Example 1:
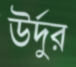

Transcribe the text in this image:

উর্দুর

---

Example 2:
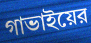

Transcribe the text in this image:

গাভাইয়ের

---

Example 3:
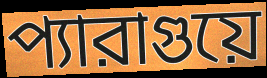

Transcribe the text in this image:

প্যারাগুয়ে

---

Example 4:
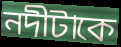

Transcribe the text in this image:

নদীটাকে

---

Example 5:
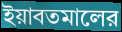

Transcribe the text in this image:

ইয়াবতমালের